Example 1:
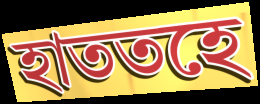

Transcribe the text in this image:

হাততহে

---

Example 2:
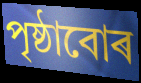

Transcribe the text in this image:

পৃষ্ঠাবোৰ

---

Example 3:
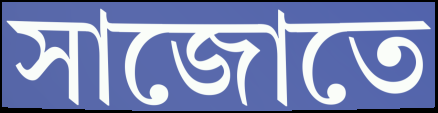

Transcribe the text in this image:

সাজোতে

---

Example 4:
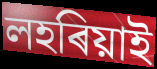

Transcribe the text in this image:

লহৰিয়াই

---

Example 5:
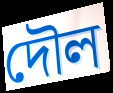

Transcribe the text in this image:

দৌল